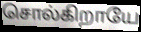
சொல்கிறாயே